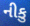
નીકુ